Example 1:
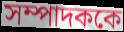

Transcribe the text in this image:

সম্পাদককে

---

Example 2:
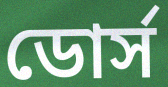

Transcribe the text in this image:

ডোর্স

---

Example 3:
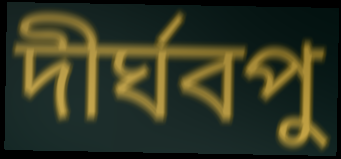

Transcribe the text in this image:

দীর্ঘবপু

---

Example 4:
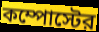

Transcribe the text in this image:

কম্পোস্টের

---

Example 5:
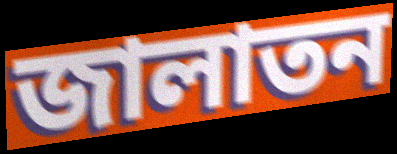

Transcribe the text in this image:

জালাতন